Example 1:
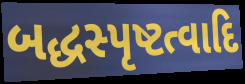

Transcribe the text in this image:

બદ્ધસ્પૃષ્ટત્વાદિ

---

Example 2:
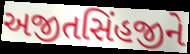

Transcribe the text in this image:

અજીતસિંહજીને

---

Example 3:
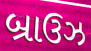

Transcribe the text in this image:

બ્રાઉઝ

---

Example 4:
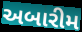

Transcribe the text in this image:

અબારીમ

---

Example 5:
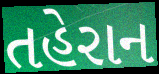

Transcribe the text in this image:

તહેરાન